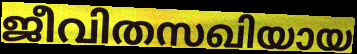
ജീവിതസഖിയായ